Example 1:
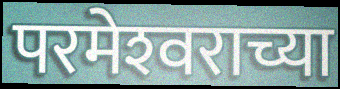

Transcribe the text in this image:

परमेश्‍वराच्या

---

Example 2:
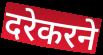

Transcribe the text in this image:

दरेकरने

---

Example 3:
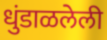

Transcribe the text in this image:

धुंडाळलेली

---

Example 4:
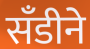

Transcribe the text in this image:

सॅंडीने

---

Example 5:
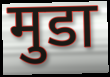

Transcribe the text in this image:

मुडा